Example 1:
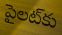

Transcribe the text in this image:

పైలట్‌కు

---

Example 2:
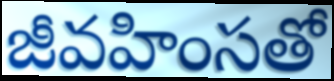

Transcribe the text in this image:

జీవహింసతో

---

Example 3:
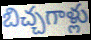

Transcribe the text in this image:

బిచ్చగాళ్లు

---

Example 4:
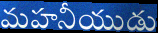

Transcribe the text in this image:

మహనీయుడు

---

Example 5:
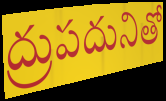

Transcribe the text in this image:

ద్రుపదునితో